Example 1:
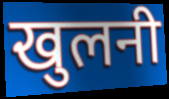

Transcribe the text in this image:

खुलनी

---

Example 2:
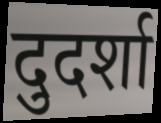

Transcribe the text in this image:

दुदर्शा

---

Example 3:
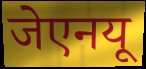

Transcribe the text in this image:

जेएनयू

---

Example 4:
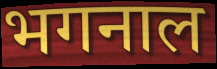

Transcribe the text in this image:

भगनाल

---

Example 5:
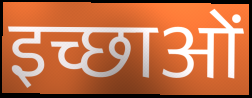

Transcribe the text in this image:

इच्छाओं